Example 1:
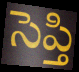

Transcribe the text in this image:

సెప్తి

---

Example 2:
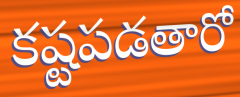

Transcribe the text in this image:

కష్టపడతారో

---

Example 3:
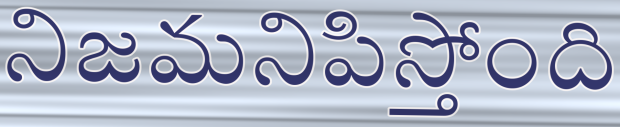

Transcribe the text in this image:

నిజమనిపిస్తోంది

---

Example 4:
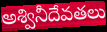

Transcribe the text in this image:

అశ్వినీదేవతలు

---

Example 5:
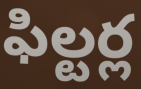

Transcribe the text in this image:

ఫిల్టర్ల